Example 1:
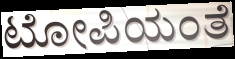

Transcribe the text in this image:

ಟೋಪಿಯಂತೆ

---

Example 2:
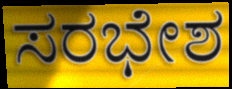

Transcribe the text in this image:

ಸರಭೇಶ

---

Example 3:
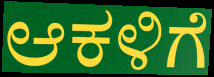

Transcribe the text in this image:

ಆಕಳಿಗೆ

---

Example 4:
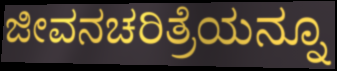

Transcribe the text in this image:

ಜೀವನಚರಿತ್ರೆಯನ್ನೂ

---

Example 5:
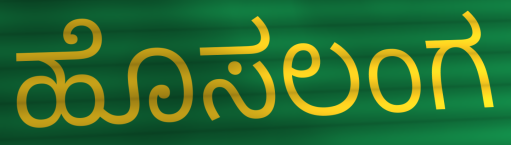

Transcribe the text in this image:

ಹೊಸಲಂಗ